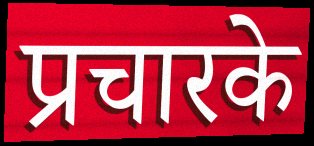
प्रचारके